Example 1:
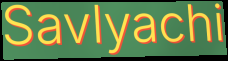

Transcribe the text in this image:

Savlyachi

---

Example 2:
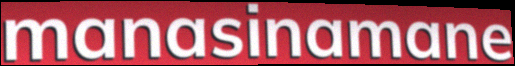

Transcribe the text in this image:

manasinamane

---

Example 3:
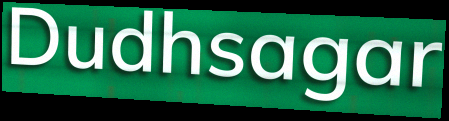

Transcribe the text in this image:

Dudhsagar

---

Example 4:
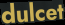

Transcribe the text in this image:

dulcet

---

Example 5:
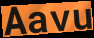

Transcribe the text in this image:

Aavu